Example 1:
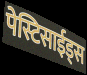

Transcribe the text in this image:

पेस्टिसाईड्स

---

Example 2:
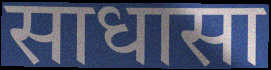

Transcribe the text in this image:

साधासा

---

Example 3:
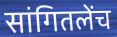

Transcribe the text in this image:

सांगितलेंच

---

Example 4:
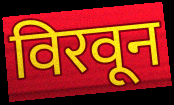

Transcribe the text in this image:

विरवून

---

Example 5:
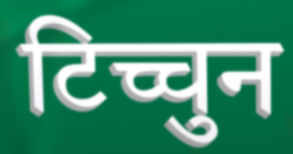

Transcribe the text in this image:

टिच्चुन